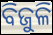
ବିଜୁଳି